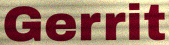
Gerrit